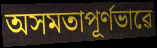
অসমতাপূৰ্ণভাৱে